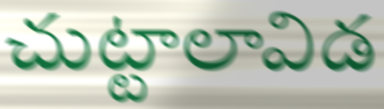
చుట్టాలావిడ